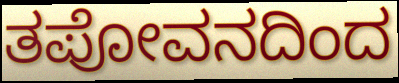
ತಪೋವನದಿಂದ